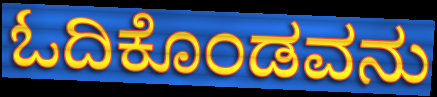
ಓದಿಕೊಂಡವನು